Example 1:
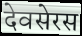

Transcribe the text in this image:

देवसेरस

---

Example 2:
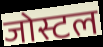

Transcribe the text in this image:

जोस्टल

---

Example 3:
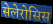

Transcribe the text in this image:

सेलेरोसिस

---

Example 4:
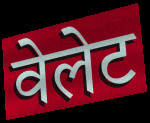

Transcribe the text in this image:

वेलेट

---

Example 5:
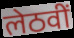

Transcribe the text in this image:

लेठवीं